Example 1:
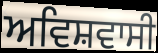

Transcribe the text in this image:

ਅਵਿਸ਼ਵਾਸੀ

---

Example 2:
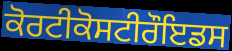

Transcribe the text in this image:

ਕੋਰਟੀਕੋਸਟੀਰੌਇਡਸ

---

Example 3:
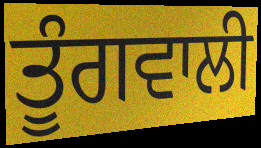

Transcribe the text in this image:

ਤੂੰਗਵਾਲੀ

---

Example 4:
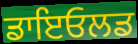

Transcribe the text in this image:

ਡਾਇਓਲਡ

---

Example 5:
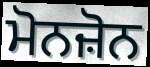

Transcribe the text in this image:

ਮੋਨਜ਼ੋਨ